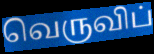
வெருவிப்